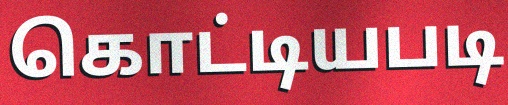
கொட்டியபடி